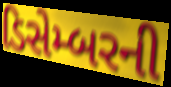
ડિસેમ્બરની